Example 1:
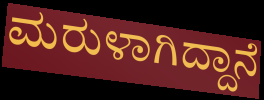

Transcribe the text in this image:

ಮರುಳಾಗಿದ್ದಾನೆ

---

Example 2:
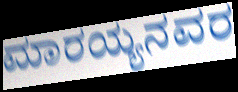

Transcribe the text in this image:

ಮಾರಯ್ಯನವರ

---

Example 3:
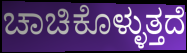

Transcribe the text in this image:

ಚಾಚಿಕೊಳ್ಳುತ್ತದೆ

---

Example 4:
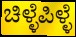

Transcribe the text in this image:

ಚಿಳ್ಳೆಪಿಳ್ಳೆ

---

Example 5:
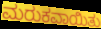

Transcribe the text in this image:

ಮರುಕವಾಯಿತು